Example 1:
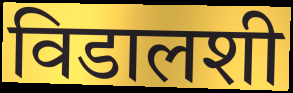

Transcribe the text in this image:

विडालशी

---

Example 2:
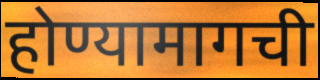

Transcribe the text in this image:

होण्यामागची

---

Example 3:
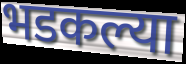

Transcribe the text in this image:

भडकल्या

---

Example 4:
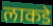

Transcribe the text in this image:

लाकडे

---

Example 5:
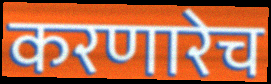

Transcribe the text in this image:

करणारेच